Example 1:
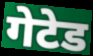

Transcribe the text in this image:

गेटेड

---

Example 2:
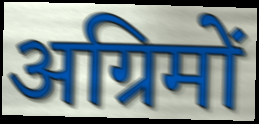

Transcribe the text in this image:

अग्रिमों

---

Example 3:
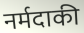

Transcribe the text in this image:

नर्मदाकी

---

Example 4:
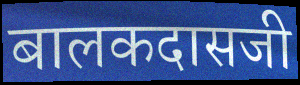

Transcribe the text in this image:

बालकदासजी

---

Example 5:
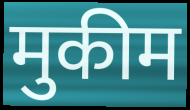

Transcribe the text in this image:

मुकीम